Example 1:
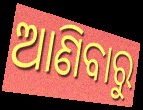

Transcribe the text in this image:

ଆଣିବାରୁ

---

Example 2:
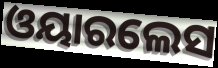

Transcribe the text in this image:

ଓୟାରଲେସ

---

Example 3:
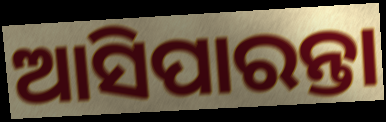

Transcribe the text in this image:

ଆସିପାରନ୍ତା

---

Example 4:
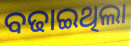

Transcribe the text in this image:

ବଢାଇଥିଲା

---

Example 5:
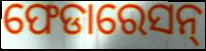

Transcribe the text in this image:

ଫେଡାରେସନ୍